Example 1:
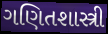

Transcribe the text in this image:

ગણિતશાસ્ત્રી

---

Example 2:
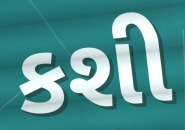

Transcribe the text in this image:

કશી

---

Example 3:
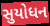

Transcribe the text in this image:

સુયોધન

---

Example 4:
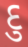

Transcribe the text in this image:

દુ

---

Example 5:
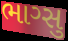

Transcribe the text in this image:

ભાગ્સુ